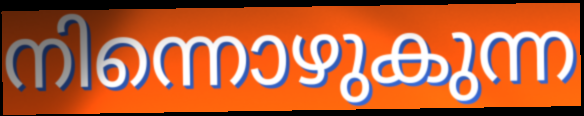
നിന്നൊഴുകുന്ന